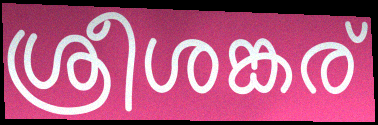
ശ്രീശങ്കര്